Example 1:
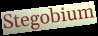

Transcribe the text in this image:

Stegobium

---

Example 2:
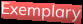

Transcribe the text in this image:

Exemplary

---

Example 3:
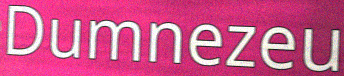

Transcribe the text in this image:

Dumnezeu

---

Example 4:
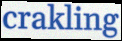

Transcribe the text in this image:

crakling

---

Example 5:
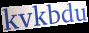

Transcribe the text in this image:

kvkbdu